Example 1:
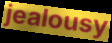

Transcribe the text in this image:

jealousy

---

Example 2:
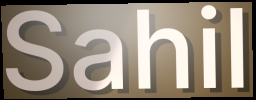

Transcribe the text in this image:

Sahil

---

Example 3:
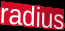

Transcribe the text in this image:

radius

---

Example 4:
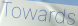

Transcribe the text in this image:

Towards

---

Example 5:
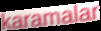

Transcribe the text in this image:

karamalar